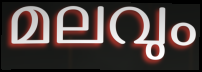
മലവും